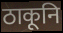
ठाकूनि